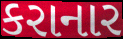
કરાનાર